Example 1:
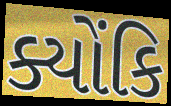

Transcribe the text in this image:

ક્યોંકિ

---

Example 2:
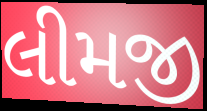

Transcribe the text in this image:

લીમજી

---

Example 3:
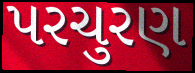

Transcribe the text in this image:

પરચુરણ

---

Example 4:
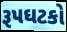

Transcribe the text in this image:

રૂપઘટકો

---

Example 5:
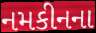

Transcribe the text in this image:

નમકીનના